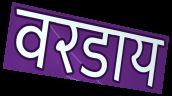
वरडाय